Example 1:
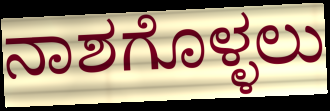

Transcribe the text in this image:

ನಾಶಗೊಳ್ಳಲು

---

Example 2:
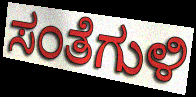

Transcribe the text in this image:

ಸಂತೆಗುಳಿ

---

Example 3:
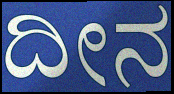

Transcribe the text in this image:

ದೀನ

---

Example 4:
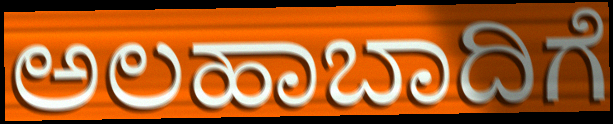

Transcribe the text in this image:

ಅಲಹಾಬಾದಿಗೆ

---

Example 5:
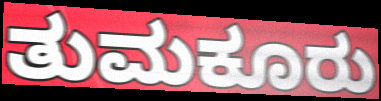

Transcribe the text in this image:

ತುಮಕೂರು